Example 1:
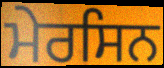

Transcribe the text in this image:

ਮੇਰਸਿਨ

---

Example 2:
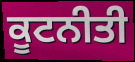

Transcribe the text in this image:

ਕੂਟਨੀਤੀ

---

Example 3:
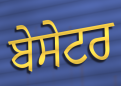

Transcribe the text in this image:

ਬੇਸੇਟਰ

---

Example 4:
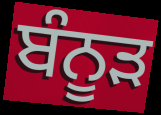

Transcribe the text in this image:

ਬੰਨੂੜ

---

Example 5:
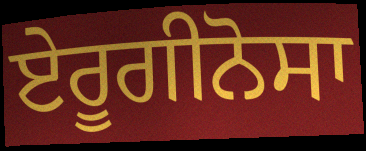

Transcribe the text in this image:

ਏਰੂਗੀਨੋਸਾ